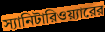
স্যানিটারিওয়্যারের